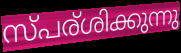
സ്പര്ശിക്കുന്നു